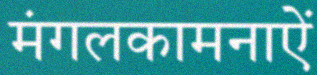
मंगलकामनाऐं